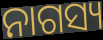
ନାଗସ୍ୟ